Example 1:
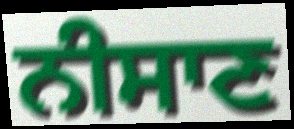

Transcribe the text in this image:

ਨੀਸਾਣ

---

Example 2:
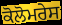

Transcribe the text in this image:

ਕੋਲੋਮਰੇਸ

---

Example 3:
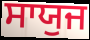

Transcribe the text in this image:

ਸਾਯੁਜ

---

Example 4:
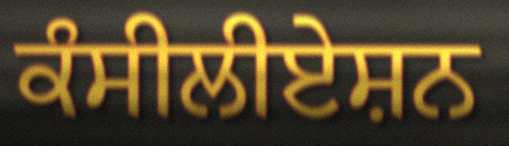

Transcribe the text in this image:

ਕੰਸੀਲੀਏਸ਼ਨ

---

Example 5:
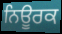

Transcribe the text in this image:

ਨਿਊਰਕ